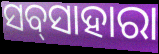
ସବ୍‌ସାହାରା